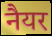
नैयर